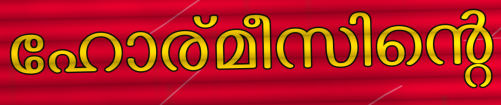
ഹോര്മീസിന്റെ